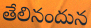
తేలినందున